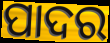
ପାଦର